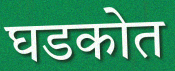
घडकोत